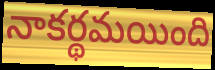
నాకర్థమయింది